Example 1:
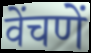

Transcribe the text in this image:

वेंचणें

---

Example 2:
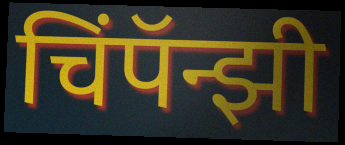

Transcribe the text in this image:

चिंपॅन्झी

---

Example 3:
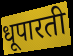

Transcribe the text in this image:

धूपारती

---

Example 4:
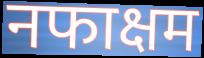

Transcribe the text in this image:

नफाक्षम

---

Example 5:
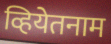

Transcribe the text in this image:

व्हियेतनाम